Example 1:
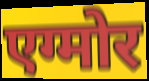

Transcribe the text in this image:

एग्मोर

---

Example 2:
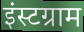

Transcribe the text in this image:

इंस्टग्राम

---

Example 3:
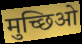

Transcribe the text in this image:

मुच्छिओ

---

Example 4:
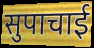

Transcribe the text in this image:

सुपाचाई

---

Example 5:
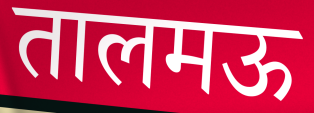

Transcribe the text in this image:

तालमऊ